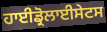
ਹਾਈਡ੍ਰੋਲਾਈਸੇਟਸ